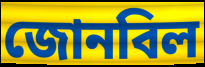
জোনবিল